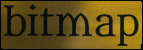
bitmap